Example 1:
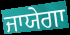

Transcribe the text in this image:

ਜਾਯੇਗਾ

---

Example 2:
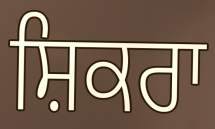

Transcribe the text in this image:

ਸ਼ਿਕਰਾ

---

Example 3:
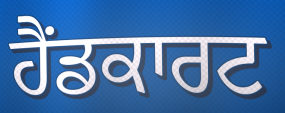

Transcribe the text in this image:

ਹੈਂਡਕਾਰਟ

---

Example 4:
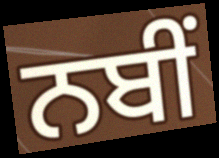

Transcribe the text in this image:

ਨਬੀਂ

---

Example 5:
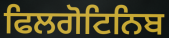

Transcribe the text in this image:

ਫਿਲਗੋਟਿਨਿਬ